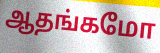
ஆதங்கமோ